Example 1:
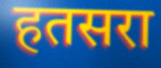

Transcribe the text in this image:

हतसरा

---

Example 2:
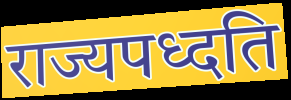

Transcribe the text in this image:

राज्यपध्दति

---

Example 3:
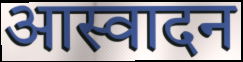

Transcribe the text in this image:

आस्वादन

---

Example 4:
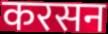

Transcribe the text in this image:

करसन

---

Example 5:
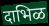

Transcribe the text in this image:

दाभिळ